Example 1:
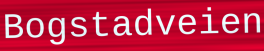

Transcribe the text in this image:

Bogstadveien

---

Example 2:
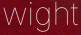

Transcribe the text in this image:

wight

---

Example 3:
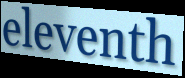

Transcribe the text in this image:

eleventh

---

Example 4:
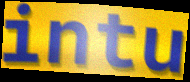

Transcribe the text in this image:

intu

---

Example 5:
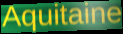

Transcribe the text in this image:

Aquitaine